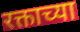
रक्ताच्या